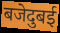
बजेदुबई